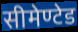
सीमेण्टेड